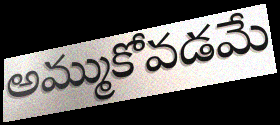
అమ్ముకోవడమే